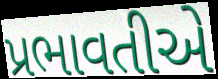
પ્રભાવતીએ